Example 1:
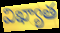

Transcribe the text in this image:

విఖ్యాత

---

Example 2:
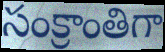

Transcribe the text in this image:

సంక్రాంతిగా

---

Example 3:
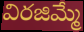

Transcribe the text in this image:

విరజిమ్మే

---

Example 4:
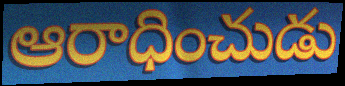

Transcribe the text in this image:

ఆరాధించుడు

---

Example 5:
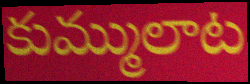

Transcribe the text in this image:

కుమ్ములాట